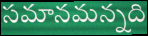
సమానమన్నది